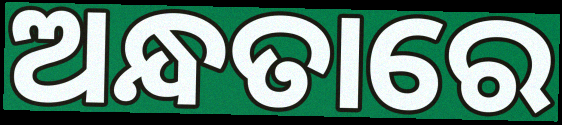
ଅନ୍ଧତାରେ